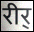
रीर्